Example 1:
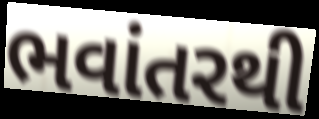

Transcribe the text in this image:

ભવાંતરથી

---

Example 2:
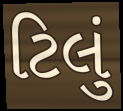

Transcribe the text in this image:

ટિલું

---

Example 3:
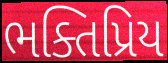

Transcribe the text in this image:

ભક્તિપ્રિય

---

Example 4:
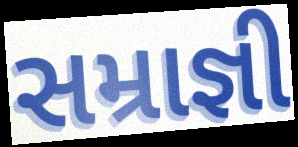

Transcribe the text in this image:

સમ્રાજ્ઞી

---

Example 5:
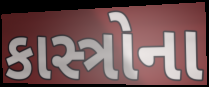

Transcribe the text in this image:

કાસ્ત્રોના